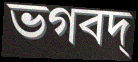
ভগবদ্